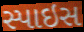
સ્પાઇસ